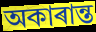
অকাৰান্ত